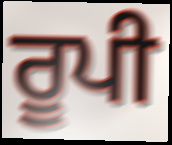
ਰੂਪੀ